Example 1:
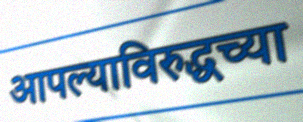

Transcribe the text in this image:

आपल्याविरुद्धच्या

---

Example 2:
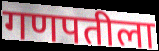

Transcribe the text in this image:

गणपतीला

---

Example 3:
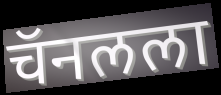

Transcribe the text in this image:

चॅनलला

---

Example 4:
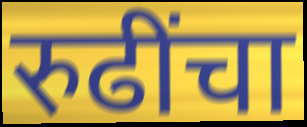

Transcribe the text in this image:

रुढींचा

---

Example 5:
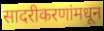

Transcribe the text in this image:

सादरीकरणांमधून